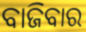
ବାଜିବାର